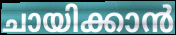
ചായിക്കാൻ